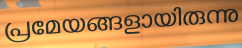
പ്രമേയങ്ങളായിരുന്നു